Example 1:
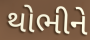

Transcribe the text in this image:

થોભીને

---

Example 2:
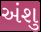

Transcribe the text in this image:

અંશુ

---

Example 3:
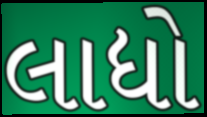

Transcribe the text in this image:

લાદ્યો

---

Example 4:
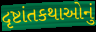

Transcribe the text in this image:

દૃષ્ટાંતકથાઓનું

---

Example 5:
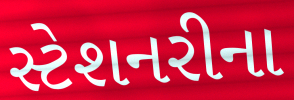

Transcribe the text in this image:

સ્ટેશનરીના